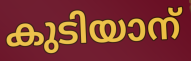
കുടിയാന്